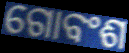
ଗୋବଂଶ